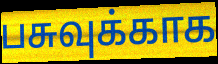
பசுவுக்காக